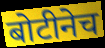
बोटीनेच